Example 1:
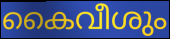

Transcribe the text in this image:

കൈവീശും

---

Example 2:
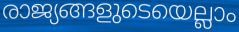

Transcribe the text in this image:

രാജ്യങ്ങളുടെയെല്ലാം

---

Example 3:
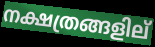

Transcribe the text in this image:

നക്ഷത്രങ്ങളില്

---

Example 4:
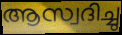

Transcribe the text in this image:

ആസ്വദിച്ചു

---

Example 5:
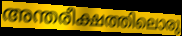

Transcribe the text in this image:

അന്തരീക്ഷത്തിലൊരു